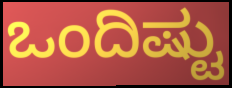
ಒಂದಿಷ್ಟು